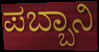
ಪಬ್ಬಾನಿ